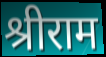
श्रीराम